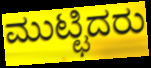
ಮುಟ್ಟಿದರು